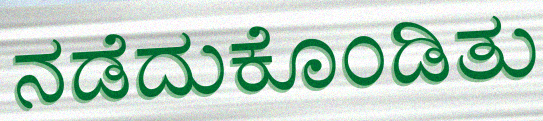
ನಡೆದುಕೊಂಡಿತು